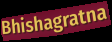
Bhishagratna